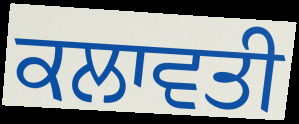
ਕਲਾਵਤੀ